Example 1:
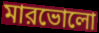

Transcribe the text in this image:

মারভোলো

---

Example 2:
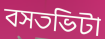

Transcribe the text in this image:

বসতভিটা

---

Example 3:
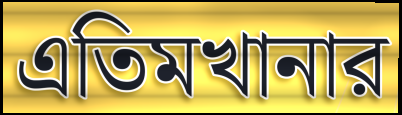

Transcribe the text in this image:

এতিমখানার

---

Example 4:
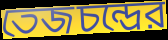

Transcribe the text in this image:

তেজচন্দ্রের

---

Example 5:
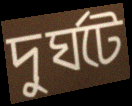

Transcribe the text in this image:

দুর্ঘটে